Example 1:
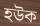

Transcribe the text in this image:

হউক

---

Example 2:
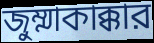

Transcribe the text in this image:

জুম্মাকাক্কার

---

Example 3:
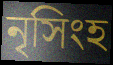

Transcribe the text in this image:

নৃসিংহ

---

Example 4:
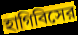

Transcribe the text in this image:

হাগিবিসের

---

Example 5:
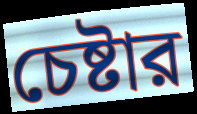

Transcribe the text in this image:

চেষ্টার